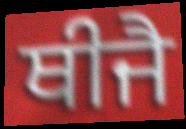
ਥੀਜੈ